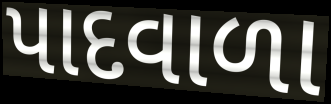
પાદવાળા